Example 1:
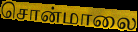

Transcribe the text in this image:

சொன்மாலை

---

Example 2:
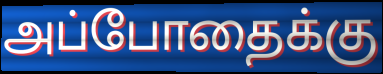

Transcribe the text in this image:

அப்போதைக்கு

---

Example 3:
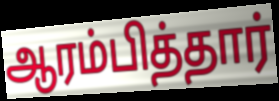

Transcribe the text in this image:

ஆரம்பித்தார்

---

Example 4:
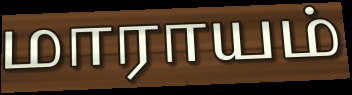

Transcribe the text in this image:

மாராயம்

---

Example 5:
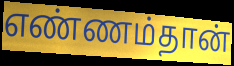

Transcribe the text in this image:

எண்ணம்தான்